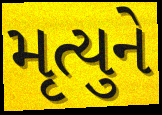
મૃત્યુને